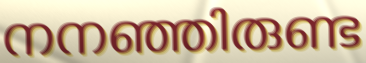
നനഞ്ഞിരുണ്ട